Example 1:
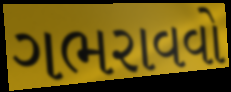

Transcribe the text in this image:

ગભરાવવો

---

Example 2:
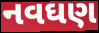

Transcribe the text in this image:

નવઘણ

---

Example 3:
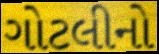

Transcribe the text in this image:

ગોટલીનો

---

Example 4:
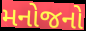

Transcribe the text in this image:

મનોજનો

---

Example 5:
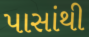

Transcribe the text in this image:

પાસાંથી